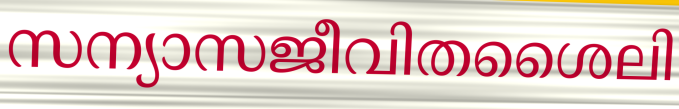
സന്യാസജീവിതശൈലി